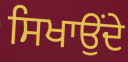
ਸਿਖਾਉਂਦੇ